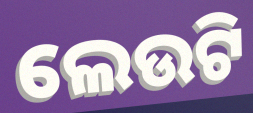
ଲେଉଟି